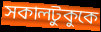
সকালটুকুকে